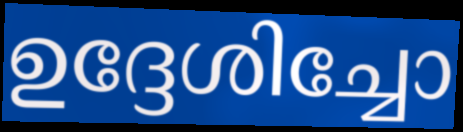
ഉദ്ദേശിച്ചോ